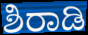
ಶಿರಾಡಿ